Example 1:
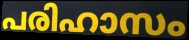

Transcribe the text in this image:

പരിഹാസം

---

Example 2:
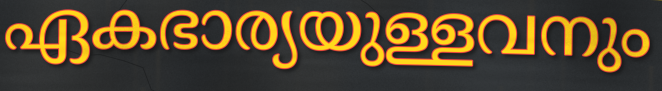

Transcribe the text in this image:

ഏകഭാര്യയുള്ളവനും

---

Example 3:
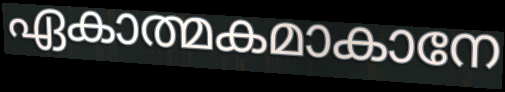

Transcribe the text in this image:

ഏകാത്മകമാകാനേ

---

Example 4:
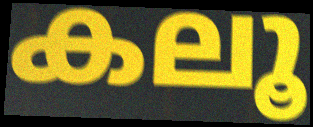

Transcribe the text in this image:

കലൂ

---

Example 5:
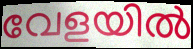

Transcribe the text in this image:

വേളയിൽ